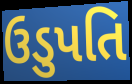
ઉડુપતિ